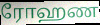
ரோஹண